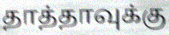
தாத்தாவுக்கு